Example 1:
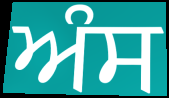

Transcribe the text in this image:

ਅੰਸ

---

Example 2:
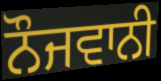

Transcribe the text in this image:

ਨੌਜਵਾਨੀ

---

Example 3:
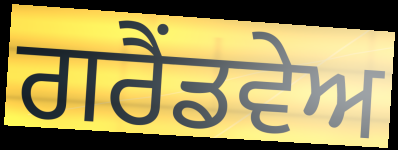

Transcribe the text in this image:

ਗਰੈਂਡਵੇਅ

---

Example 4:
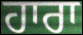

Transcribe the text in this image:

ਹਾਰਾ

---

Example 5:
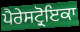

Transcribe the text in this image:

ਪੈਰੇਸਟ੍ਰੋਇਕਾ